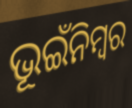
ଭୂଇଁନିମ୍ବର